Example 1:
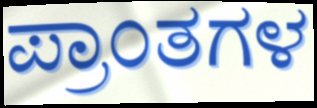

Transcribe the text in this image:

ಪ್ರಾಂತಗಳ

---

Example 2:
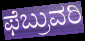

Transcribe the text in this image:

ಫೆಬ್ರುವರಿ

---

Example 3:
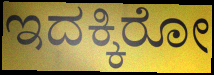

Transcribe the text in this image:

ಇದಕ್ಕಿರೋ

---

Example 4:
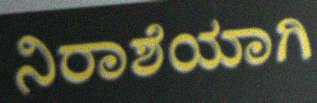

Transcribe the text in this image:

ನಿರಾಶೆಯಾಗಿ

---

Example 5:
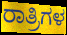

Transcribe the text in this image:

ರಾತ್ರಿಗಳ